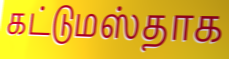
கட்டுமஸ்தாக